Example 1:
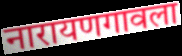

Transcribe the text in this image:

नारायणगावला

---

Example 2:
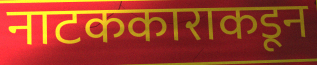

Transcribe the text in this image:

नाटककाराकडून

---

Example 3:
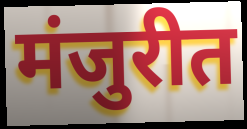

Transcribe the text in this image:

मंजुरीत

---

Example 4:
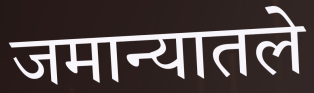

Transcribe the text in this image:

जमान्यातले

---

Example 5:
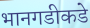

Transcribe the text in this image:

भानगडीकडे